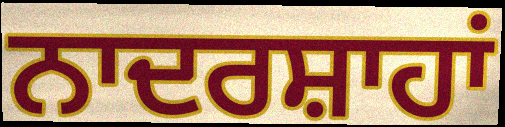
ਨਾਦਰਸ਼ਾਹਾਂ